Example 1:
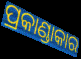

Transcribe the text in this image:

ପ୍ରକାଣ୍ଡାକାର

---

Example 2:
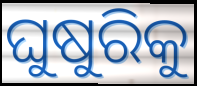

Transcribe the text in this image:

ଘୁଷୁରିକୁ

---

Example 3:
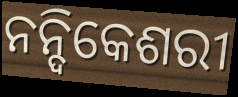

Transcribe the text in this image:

ନନ୍ଦିକେଶରୀ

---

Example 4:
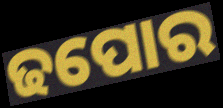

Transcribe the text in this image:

ଢପୋର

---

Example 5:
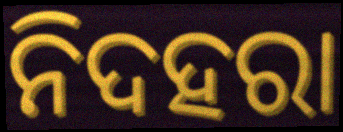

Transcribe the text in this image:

ନିଦହରା